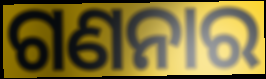
ଗଣନାର